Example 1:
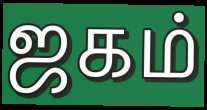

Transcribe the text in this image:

ஜகம்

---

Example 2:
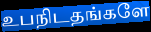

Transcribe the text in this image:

உபநிடதங்களே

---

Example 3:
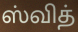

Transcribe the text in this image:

ஸ்வித்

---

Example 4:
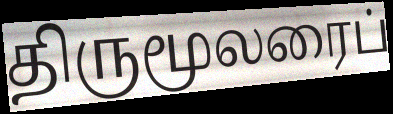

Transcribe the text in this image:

திருமூலரைப்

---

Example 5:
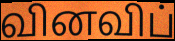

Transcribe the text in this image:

வினவிப்